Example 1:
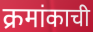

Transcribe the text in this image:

क्रमांकाची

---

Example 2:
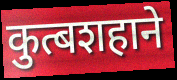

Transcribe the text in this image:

कुत्बशहाने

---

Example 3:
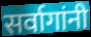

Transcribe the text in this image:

सर्वागांनी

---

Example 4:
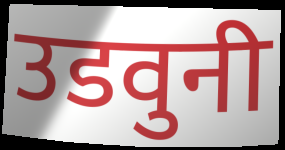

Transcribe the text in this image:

उडवुनी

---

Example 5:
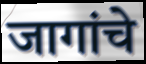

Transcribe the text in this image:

जागांचे